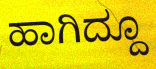
ಹಾಗಿದ್ದೂ